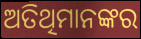
ଅତିଥିମାନଙ୍କର